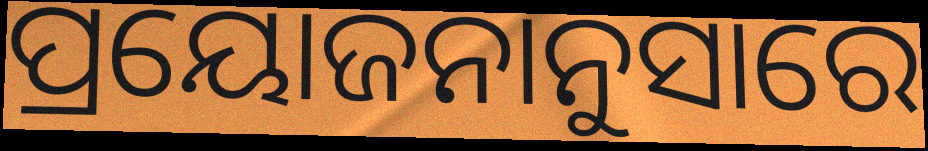
ପ୍ରୟୋଜନାନୁସାରେ